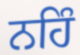
ਨਹਿੰ